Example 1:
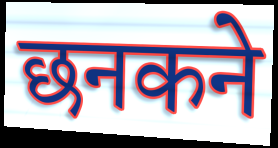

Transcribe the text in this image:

छनकने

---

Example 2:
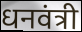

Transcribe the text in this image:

धनवंत्री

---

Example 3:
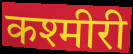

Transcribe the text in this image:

कश्‍मीरी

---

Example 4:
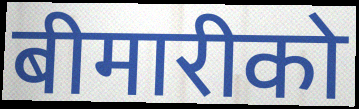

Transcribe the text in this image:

बीमारीको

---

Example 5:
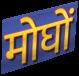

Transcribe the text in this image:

मोघों